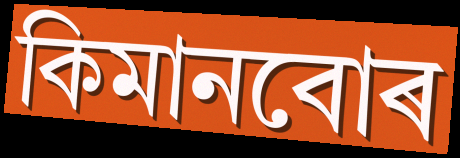
কিমানবোৰ